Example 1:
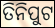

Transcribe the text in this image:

ତିନିପୁଟ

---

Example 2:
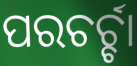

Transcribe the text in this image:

ପରଚର୍ଚ୍ଚା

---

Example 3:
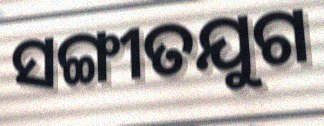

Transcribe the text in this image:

ସଙ୍ଗୀତଯୁଗ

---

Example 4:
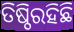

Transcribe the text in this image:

ତିଷ୍ଠିରହିଛି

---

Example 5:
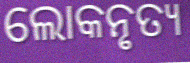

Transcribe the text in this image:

ଲୋକନୃତ୍ଯ